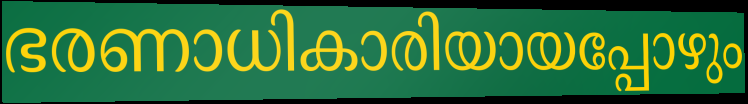
ഭരണാധികാരിയായപ്പോഴും